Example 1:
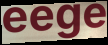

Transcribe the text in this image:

eege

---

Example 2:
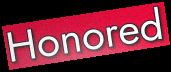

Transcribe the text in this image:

Honored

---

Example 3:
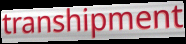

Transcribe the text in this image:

transhipment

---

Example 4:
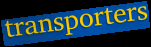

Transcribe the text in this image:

transporters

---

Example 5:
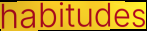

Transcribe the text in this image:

habitudes